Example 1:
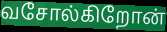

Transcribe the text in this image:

வசோல்கிறோன்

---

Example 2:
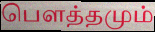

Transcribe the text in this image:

பௌத்தமும்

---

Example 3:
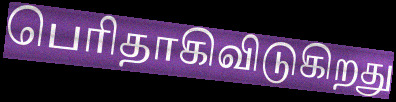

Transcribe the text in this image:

பெரிதாகிவிடுகிறது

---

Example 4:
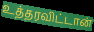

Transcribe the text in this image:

உத்தரவிட்டான்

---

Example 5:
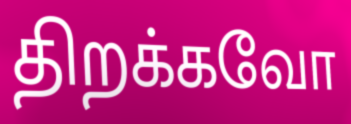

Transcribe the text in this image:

திறக்கவோ